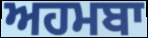
ਅਹਮਬਾ